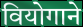
वियोगाने